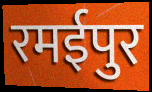
रमईपुर